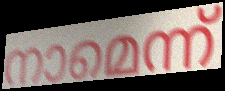
നാമെന്ന്